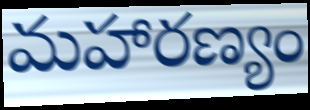
మహారణ్యం